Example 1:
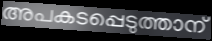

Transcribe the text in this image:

അപകടപ്പെടുത്താന്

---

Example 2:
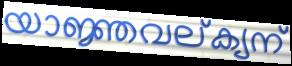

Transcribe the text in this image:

യാജ്ഞവല്ക്യന്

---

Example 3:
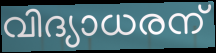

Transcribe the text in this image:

വിദ്യാധരന്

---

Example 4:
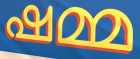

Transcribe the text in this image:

ഷമ്മ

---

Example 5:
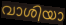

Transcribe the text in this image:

വാശിയാ